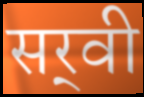
सर्वी